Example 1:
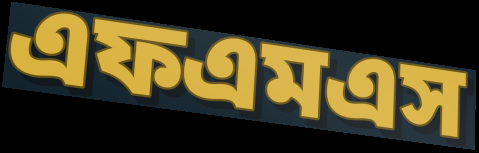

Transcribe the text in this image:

এফএমএস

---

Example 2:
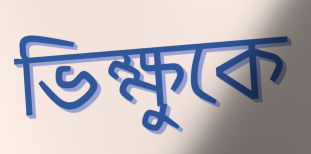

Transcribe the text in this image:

ভিক্ষুকে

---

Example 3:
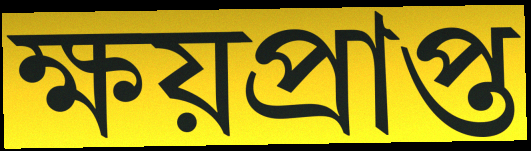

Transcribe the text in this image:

ক্ষয়প্রাপ্ত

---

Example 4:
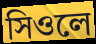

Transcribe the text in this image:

সিওলে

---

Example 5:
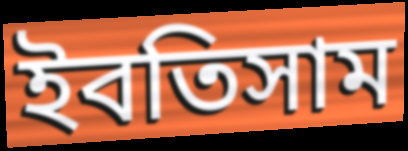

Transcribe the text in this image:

ইবতিসাম